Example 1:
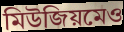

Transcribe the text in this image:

মিউজিয়মেও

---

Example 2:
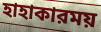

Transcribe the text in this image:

হাহাকারময়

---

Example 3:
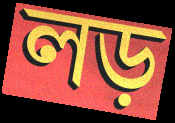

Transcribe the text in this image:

লড়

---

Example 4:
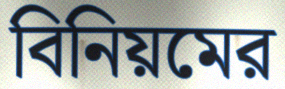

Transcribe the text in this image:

বিনিয়মের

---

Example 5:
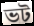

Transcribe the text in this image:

ভট